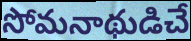
సోమనాథుడిచే